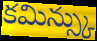
కమిన్స్కు